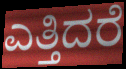
ಎತ್ತಿದರೆ